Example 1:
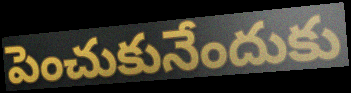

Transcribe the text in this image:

పెంచుకునేందుకు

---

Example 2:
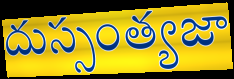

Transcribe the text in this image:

దుస్సంత్యజా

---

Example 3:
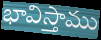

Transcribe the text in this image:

భావిస్తాము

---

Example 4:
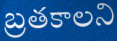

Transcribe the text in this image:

బ్రతకాలని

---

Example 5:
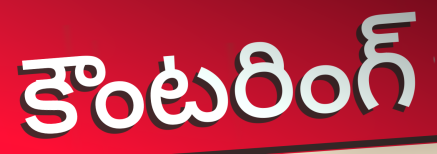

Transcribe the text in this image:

కౌంటరింగ్